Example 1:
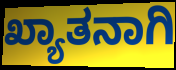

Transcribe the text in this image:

ಖ್ಯಾತನಾಗಿ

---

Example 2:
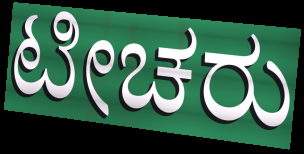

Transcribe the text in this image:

ಟೀಚರು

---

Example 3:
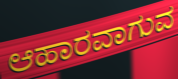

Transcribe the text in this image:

ಆಹಾರವಾಗುವ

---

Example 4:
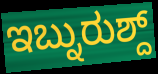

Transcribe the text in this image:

ಇಬ್ನುರುಶ್ದ್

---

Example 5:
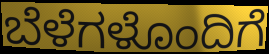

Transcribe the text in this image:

ಬೆಳೆಗಳೊಂದಿಗೆ